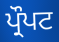
ਪ੍ਰੌਪਟ